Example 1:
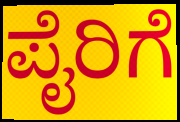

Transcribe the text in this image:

ಪೈರಿಗೆ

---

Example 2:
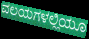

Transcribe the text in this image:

ವಲಯಗಳಲ್ಲಿಯೂ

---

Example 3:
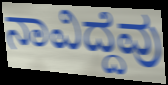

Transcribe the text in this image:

ನಾವಿದ್ದೆವು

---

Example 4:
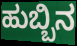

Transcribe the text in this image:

ಹುಬ್ಬಿನ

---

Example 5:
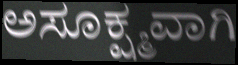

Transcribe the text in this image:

ಅಸೂಕ್ಷ್ಮವಾಗಿ